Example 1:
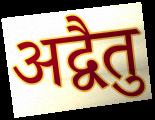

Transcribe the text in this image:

अद्वैतु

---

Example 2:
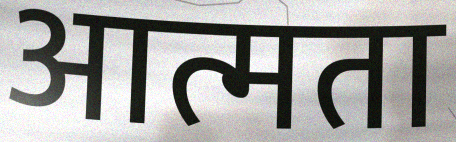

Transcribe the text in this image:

आत्मता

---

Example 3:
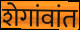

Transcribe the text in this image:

शेगांवांत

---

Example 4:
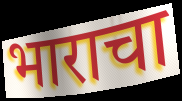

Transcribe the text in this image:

भाराचा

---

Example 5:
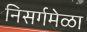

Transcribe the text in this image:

निसर्गमेळा